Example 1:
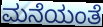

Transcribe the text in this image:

ಮನೆಯಂತೆ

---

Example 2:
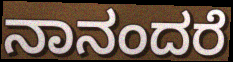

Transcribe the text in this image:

ನಾನಂದರೆ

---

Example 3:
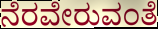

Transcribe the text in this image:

ನೆರವೇರುವಂತೆ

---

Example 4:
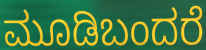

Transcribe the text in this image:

ಮೂಡಿಬಂದರೆ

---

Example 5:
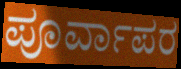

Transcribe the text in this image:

ಪೂರ್ವಾಪರ